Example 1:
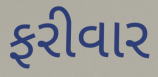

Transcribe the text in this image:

ફરીવાર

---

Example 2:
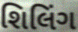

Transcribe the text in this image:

શિલિંગ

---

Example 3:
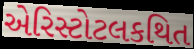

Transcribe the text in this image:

એરિસ્ટોટલકથિત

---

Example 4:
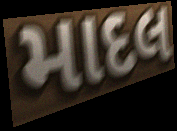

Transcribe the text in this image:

માદલ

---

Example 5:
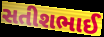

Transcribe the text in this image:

સતીશભાઈ